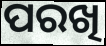
ପରଖି